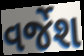
વર્જેશ